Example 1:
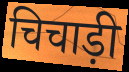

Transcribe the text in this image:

चिचाड़ी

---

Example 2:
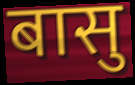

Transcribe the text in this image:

बासु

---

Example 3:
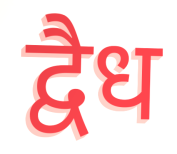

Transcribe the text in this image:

द्वैध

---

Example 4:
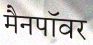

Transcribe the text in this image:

मैनपॉवर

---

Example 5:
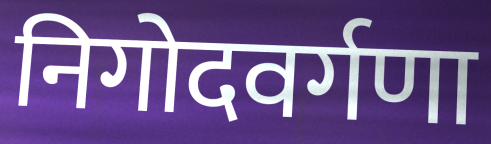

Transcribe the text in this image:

निगोदवर्गणा